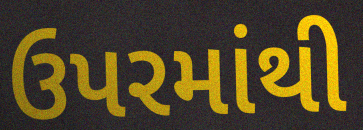
ઉપરમાંથી